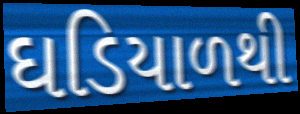
ઘડિયાળથી